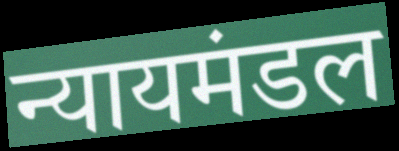
न्यायमंडल